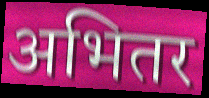
अभितर